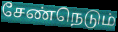
சேண்நெடும்